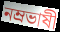
নম্রভাষী